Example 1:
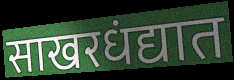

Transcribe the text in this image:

साखरधंद्यात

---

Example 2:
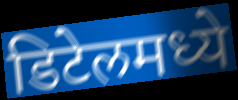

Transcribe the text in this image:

डिटेलमध्ये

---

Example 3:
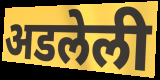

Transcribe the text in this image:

अडलेली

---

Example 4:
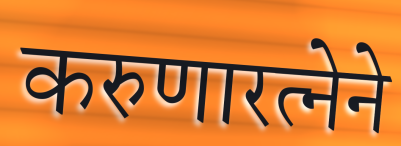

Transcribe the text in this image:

करुणारत्नेने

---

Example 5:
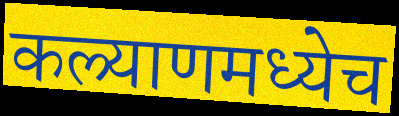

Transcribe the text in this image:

कल्याणमध्येच